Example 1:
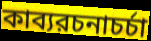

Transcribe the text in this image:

কাব্যরচনাচর্চা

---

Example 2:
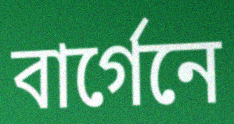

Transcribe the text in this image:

বার্গেনে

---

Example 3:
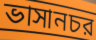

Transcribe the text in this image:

ভাসানচর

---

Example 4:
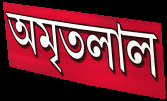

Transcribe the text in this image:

অমৃতলাল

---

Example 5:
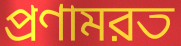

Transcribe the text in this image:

প্রণামরত